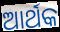
ଆର୍ଥକ